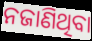
ନଜାଣିଥିବା